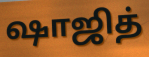
ஷாஜித்